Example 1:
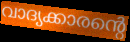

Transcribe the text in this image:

വാദ്യക്കാരന്റെ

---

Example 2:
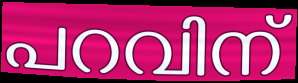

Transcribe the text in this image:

പറവിന്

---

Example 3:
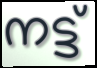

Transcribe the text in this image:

നട്ട്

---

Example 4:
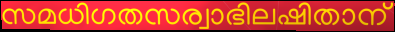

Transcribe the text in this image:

സമധിഗതസര്വാഭിലഷിതാന്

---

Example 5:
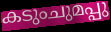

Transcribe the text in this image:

കടുംചുമപ്പു